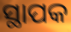
ସ୍ଥାପକ